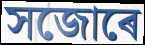
সজোৰে